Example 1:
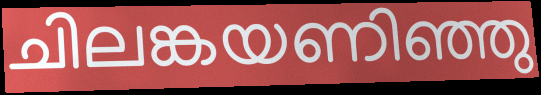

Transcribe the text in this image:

ചിലങ്കയണിഞ്ഞു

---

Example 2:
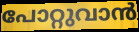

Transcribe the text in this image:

പോറ്റുവാൻ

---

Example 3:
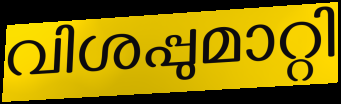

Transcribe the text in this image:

വിശപ്പുമാറ്റി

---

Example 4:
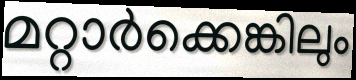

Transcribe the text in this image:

മറ്റാർക്കെങ്കിലും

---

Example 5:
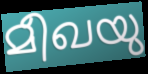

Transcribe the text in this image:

മീഖയു